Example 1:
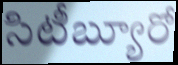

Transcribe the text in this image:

సిటీబ్యూరో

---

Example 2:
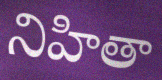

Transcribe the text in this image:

నిహితా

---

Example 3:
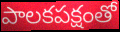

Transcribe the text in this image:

పాలకపక్షంతో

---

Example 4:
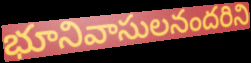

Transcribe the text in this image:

భూనివాసులనందరిని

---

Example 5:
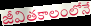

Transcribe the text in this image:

జీవితకాలంలోనే